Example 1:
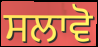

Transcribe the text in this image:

ਸਲਾਵੋ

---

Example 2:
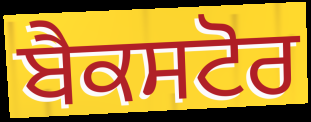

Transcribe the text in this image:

ਬੈਕਸਟੋਰ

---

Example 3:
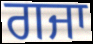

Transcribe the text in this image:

ਗਜਾ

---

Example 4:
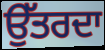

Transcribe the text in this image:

ਉੱਤਰਦਾ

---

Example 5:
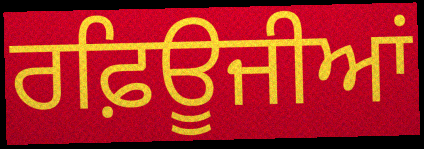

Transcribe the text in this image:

ਰਫ਼ਿਊਜੀਆਂ